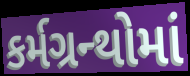
કર્મગ્રન્થોમાં